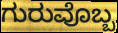
ಗುರುವೊಬ್ಬ